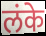
लंके